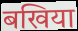
बखिया